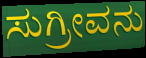
ಸುಗ್ರೀವನು